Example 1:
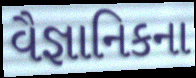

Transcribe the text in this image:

વૈજ્ઞાનિકના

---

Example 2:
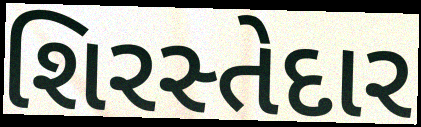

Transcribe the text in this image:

શિરસ્તેદાર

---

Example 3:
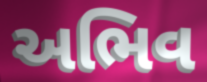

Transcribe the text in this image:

અભિવ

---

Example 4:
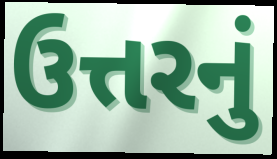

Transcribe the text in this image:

ઉત્તરનું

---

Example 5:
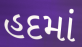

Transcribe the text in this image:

હદમાં